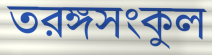
তরঙ্গসংকুল